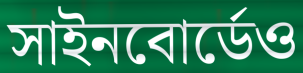
সাইনবোর্ডেও